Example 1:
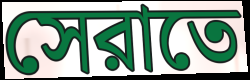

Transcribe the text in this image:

সেরাতে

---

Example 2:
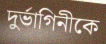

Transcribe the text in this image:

দুর্ভাগিনীকে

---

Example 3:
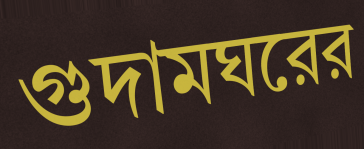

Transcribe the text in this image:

গুদামঘরের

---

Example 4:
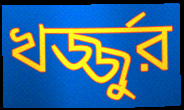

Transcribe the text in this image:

খর্জ্জুর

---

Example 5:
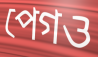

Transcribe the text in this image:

পেগও